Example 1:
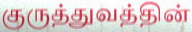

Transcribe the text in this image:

குருத்துவத்தின்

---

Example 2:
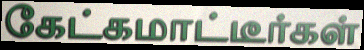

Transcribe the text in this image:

கேட்கமாட்டீர்கள்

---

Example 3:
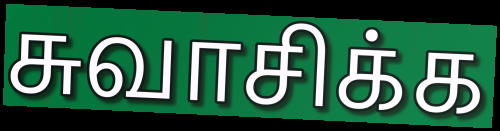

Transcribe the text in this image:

சுவாசிக்க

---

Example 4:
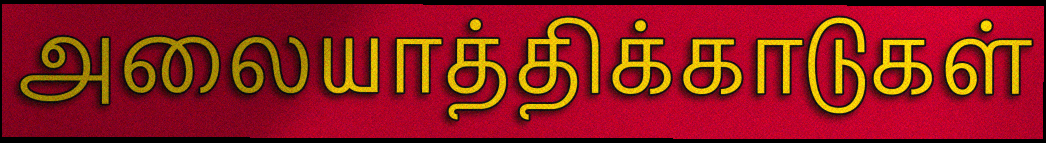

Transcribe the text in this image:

அலையாத்திக்காடுகள்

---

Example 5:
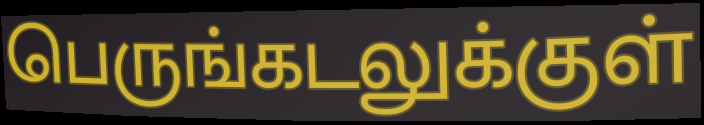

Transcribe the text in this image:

பெருங்கடலுக்குள்